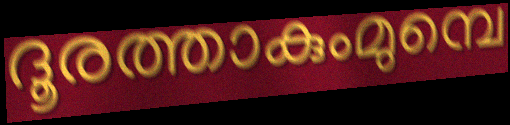
ദൂരത്താകുംമുമ്പെ